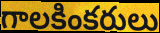
గాలకింకరులు